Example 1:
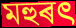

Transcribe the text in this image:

মহুৰৎ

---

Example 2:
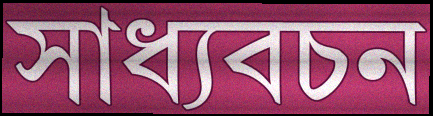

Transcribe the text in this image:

সাধ্যবচন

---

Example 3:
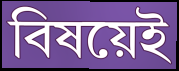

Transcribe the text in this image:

বিষয়েই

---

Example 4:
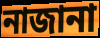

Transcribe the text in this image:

নাজানা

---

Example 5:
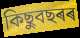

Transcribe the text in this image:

কিছুবছৰৰ